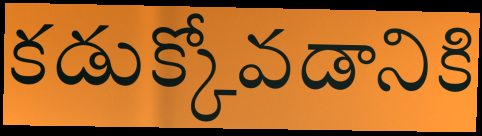
కడుక్కోవడానికి